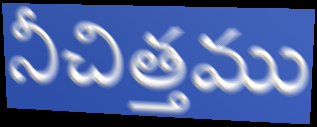
నీచిత్తము